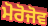
ਮੋਰੋਜੋਵ